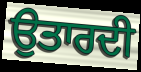
ਉਤਾਰਦੀ